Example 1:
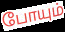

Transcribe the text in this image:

போயும்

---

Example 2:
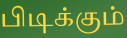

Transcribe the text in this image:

பிடிக்கும்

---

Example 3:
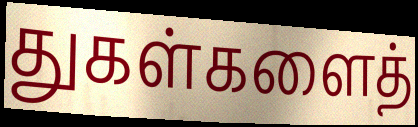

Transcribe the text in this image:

துகள்களைத்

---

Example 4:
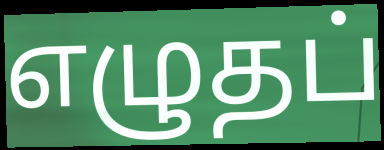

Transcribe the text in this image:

எழுதப்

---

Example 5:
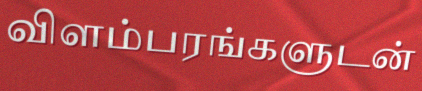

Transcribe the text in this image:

விளம்பரங்களுடன்